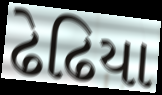
ઢેઢિયા